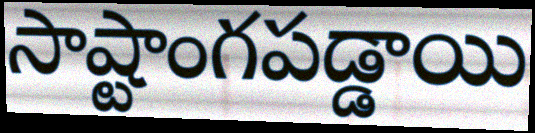
సాష్టాంగపడ్డాయి